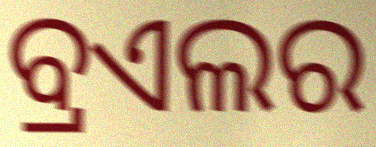
ବ୍ରଏଲର